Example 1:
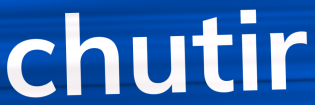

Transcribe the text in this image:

chutir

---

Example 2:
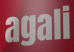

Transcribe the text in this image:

agali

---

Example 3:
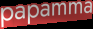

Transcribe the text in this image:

papamma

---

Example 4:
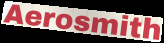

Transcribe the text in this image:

Aerosmith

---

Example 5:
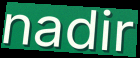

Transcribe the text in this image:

nadir